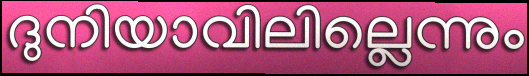
ദുനിയാവിലില്ലെന്നും